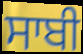
ਸਾਬੀ